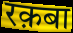
रक़बा